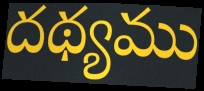
దథ్యము